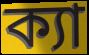
ক্যা